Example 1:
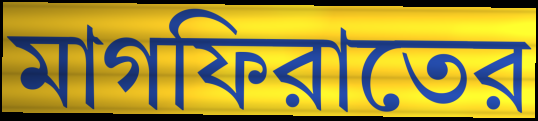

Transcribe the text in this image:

মাগফিরাতের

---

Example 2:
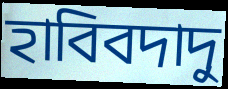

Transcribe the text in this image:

হাবিবদাদু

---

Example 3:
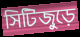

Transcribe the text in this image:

সিটিজুড়ে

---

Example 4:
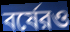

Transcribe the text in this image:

বর্ষেরও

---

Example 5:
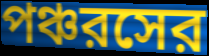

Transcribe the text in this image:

পঞ্চরসের